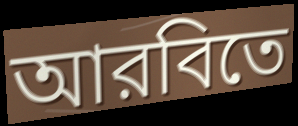
আরবিতে